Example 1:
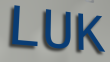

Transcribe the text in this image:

LUK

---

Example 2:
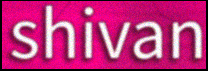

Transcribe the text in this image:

shivan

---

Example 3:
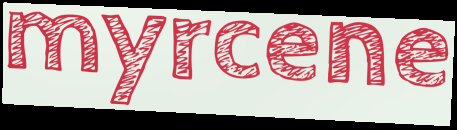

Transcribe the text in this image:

myrcene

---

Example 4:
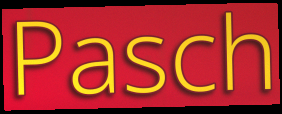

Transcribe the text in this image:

Pasch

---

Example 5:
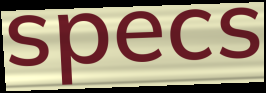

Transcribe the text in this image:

specs